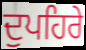
ਦੁਪਹਿਰੇ